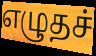
எழுதச்